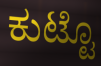
ಕುಟ್ಟೊ